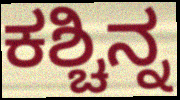
ಕಶ್ಚಿನ್ನ